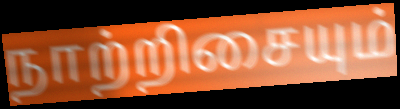
நாற்றிசையும்